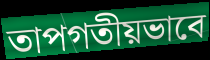
তাপগতীয়ভাবে